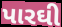
પારઘી